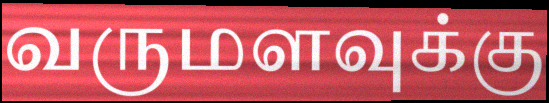
வருமளவுக்கு